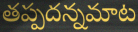
తప్పదన్నమాట